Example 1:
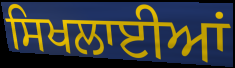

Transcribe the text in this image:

ਸਿਖਲਾਈਆਂ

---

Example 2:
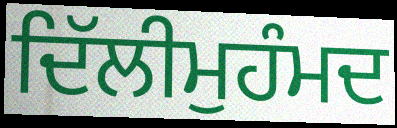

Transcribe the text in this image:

ਦਿੱਲੀਮੁਹੰਮਦ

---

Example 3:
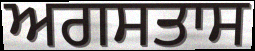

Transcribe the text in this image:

ਅਗਸਤਾਸ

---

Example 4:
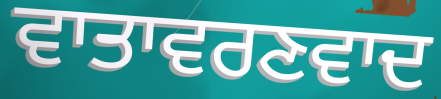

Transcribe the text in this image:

ਵਾਤਾਵਰਣਵਾਦ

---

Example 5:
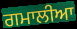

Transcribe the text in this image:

ਗਮਾਲੀਆ